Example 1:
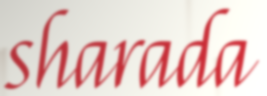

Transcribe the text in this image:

sharada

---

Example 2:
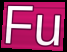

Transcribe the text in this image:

Fu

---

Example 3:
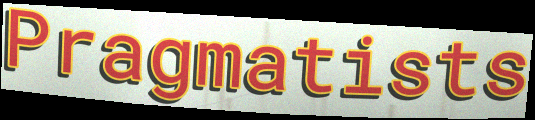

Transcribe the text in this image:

Pragmatists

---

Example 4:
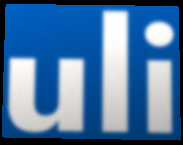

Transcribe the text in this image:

uli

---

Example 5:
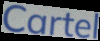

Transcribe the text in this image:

Cartel